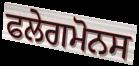
ਫਲੇਗਮੋਨਸ